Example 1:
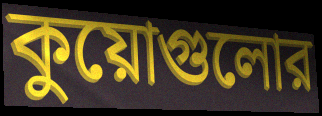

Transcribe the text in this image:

কুয়োগুলোর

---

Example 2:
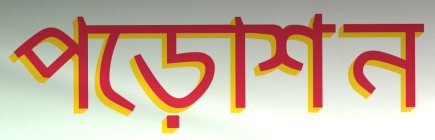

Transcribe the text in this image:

পড়োশন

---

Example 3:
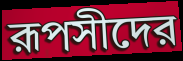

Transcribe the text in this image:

রূপসীদের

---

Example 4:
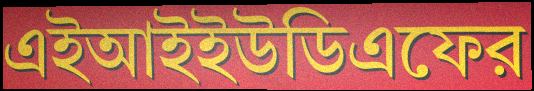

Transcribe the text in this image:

এইআইইউডিএফের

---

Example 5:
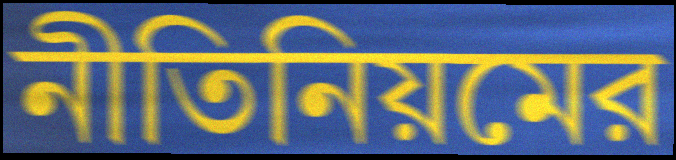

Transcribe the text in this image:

নীতিনিয়মের